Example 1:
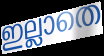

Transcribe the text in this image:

ഇല്ലാതെ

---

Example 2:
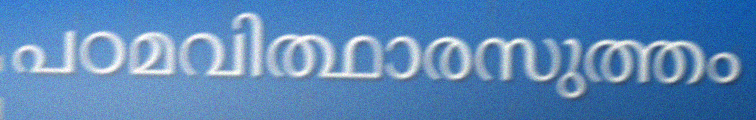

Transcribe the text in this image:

പഠമവിത്ഥാരസുത്തം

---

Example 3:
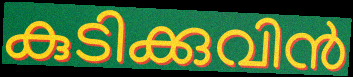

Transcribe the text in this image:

കുടിക്കുവിൻ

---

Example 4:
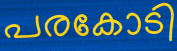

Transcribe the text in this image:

പരകോടി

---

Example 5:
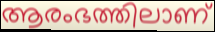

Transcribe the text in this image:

ആരംഭത്തിലാണ്